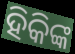
ହିକିଙ୍କ